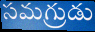
సమగ్రుడు